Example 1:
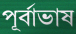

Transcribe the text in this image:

পূর্বাভাষ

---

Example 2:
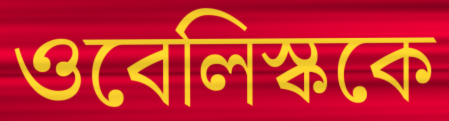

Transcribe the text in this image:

ওবেলিস্ককে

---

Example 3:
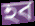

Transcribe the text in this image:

হব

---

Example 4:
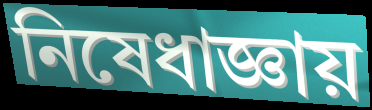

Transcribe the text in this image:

নিষেধাজ্ঞায়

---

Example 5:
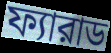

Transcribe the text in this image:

ফ্যারাড